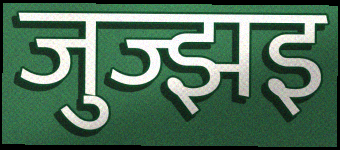
जुज्झइ